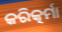
କରିତ୍କର୍ମା